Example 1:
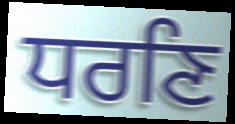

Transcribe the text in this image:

ਧਰਣਿ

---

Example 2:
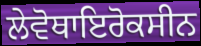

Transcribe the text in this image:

ਲੇਵੋਥਾਇਰੋਕਸੀਨ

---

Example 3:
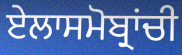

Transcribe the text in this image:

ਏਲਾਸਮੋਬ੍ਰਾਂਚੀ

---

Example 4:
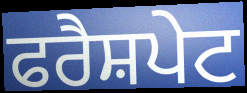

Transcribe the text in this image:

ਫਰੈਸ਼ਪੇਟ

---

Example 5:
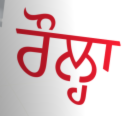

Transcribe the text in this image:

ਰੌਲ੍ਹਾ